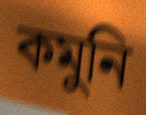
কমুনি